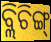
ବ୍ଲିଚିଙ୍ଗ୍